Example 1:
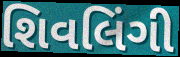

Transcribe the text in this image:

શિવલિંગી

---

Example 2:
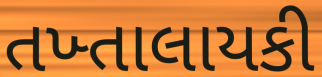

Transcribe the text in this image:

તખ્તાલાયકી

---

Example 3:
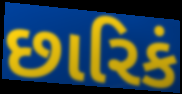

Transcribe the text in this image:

છારિકં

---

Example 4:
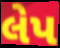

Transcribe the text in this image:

લેપ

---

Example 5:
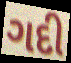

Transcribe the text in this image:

ગદી